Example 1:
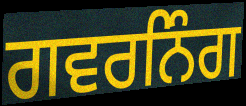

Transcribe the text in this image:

ਗਵਰਨਿੰਗ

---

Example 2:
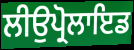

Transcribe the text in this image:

ਲੀਉਪ੍ਰੋਲਾਇਡ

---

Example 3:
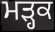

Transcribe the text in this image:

ਮੜ੍ਹਕ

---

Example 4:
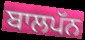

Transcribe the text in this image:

ਬਾਲਪੱਨ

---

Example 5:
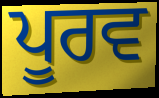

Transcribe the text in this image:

ਪੂਰਵ